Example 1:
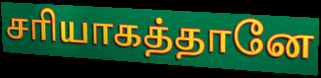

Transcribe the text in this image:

சரியாகத்தானே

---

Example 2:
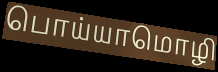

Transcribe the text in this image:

பொய்யாமொழி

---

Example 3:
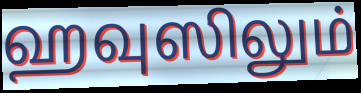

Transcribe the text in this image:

ஹவுஸிலும்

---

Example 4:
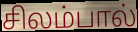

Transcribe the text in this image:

சிலம்பால்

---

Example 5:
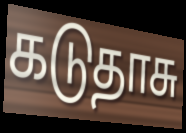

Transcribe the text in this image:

கடுதாசு